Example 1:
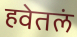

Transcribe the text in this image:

हवेतलं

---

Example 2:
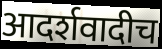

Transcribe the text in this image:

आदर्शवादीच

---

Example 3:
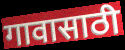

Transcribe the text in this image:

गावासाठी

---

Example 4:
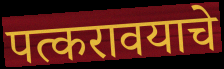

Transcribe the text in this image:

पत्करावयाचे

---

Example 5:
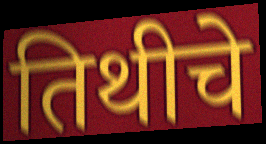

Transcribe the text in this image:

तिथीचे